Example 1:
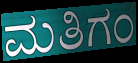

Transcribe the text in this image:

ಮತಿಗಂ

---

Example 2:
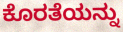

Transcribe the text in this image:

ಕೊರತೆಯನ್ನು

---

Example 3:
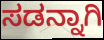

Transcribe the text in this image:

ಸಡನ್ನಾಗಿ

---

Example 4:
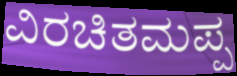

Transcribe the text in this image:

ವಿರಚಿತಮಪ್ಪ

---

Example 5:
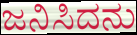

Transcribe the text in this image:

ಜನಿಸಿದನು